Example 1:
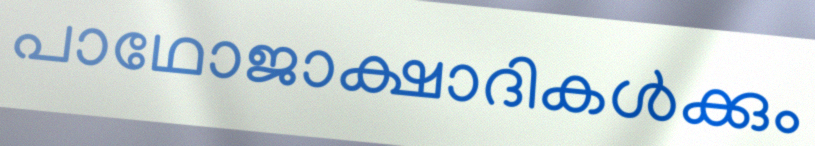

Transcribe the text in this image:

പാഥോജാക്ഷാദികൾക്കും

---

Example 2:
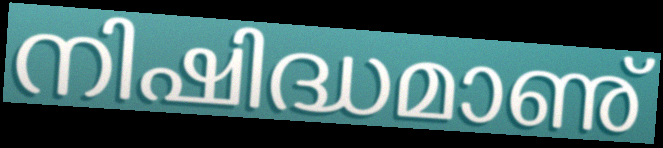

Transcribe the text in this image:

നിഷിദ്ധമാണു്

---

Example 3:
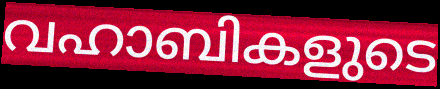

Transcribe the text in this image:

വഹാബികളുടെ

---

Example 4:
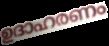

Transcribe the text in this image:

ഉദാഹരണം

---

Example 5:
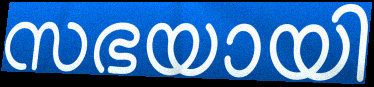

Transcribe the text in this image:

സഭയായി